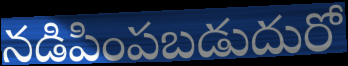
నడిపింపబడుదురో